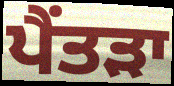
ਪੈਂਤੜਾ